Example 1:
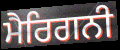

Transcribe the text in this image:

ਮੈਰਿਗਨੀ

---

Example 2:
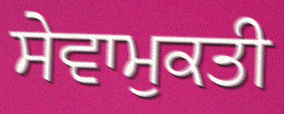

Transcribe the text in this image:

ਸੇਵਾਮੁਕਤੀ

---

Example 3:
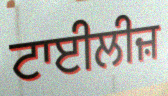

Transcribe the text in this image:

ਟਾਈਲੀਜ਼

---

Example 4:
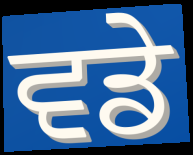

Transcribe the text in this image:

ਵਡੇ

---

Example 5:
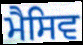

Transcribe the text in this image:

ਮੈਸਿਵ